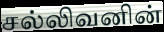
சல்லிவனின்